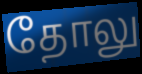
தோலு